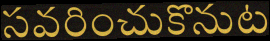
సవరించుకొనుట